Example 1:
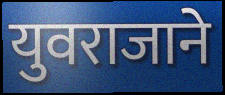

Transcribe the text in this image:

युवराजाने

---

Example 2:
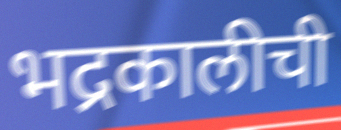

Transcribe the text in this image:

भद्रकालीची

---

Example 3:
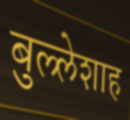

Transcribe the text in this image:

बुल्लेशाह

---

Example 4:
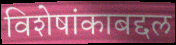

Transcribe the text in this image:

विशेषांकाबद्दल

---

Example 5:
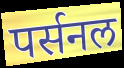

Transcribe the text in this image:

पर्सनल